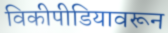
विकीपीडियावरून